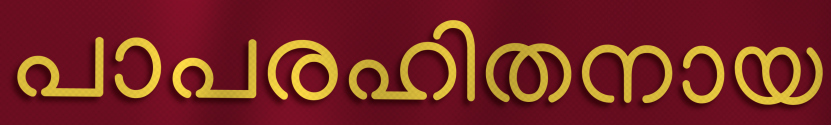
പാപരഹിതനായ